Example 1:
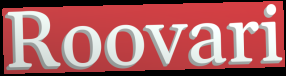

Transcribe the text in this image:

Roovari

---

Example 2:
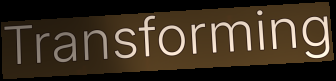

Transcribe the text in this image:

Transforming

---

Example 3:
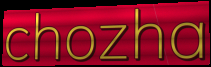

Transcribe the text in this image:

chozha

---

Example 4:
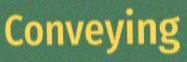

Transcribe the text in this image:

Conveying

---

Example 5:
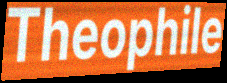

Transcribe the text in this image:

Theophile